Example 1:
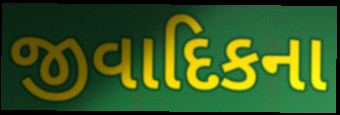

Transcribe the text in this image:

જીવાદિકના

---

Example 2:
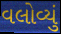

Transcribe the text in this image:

વલોવ્યું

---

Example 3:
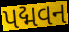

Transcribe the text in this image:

પદ્મવન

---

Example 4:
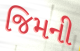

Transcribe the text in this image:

જિમની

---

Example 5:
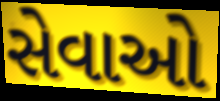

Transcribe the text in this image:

સેવાઓ